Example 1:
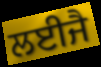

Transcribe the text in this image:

ਲਈਜੈ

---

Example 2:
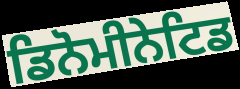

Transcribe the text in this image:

ਡਿਨੋਮੀਨੇਟਿਡ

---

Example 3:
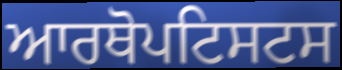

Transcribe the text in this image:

ਆਰਥੋਪਟਿਸਟਸ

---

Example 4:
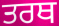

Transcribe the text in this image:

ਤਰਥ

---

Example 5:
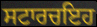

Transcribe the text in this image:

ਸਟਾਰਚਇਹ